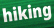
hiking